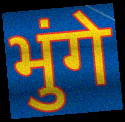
भुंगे